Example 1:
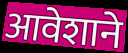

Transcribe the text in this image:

आवेशाने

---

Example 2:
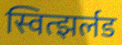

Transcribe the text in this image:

स्वित्झर्लड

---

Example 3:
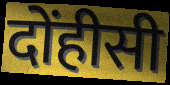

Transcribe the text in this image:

दोंहीसी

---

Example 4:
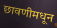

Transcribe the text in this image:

छावणीमधून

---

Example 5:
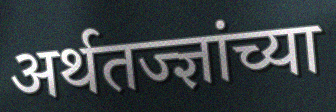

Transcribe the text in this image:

अर्थतज्ज्ञांच्या